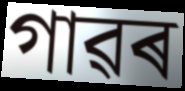
গাৱৰ